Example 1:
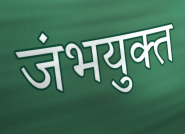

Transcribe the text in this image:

जंभयुक्त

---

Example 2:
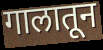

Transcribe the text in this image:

गालातून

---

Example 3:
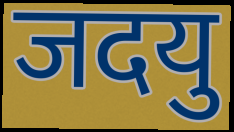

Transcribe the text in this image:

जदयु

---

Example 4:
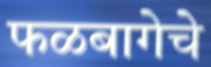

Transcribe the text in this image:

फळबागेचे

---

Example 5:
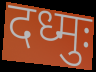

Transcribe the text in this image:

दध्मुः